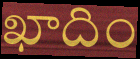
ఖాదిం